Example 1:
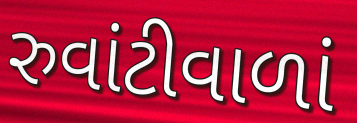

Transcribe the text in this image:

રુવાંટીવાળાં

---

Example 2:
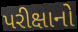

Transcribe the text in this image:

પરીક્ષાનો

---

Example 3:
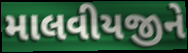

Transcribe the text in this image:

માલવીયજીને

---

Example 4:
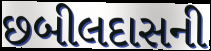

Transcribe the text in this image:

છબીલદાસની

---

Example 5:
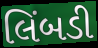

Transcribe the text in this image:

લિંબડી